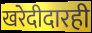
खरेदीदारही